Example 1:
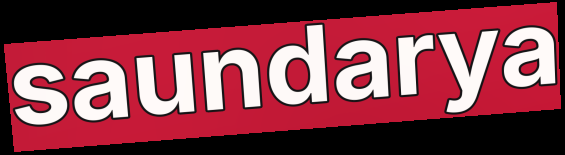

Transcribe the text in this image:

saundarya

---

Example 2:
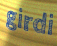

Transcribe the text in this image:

girdi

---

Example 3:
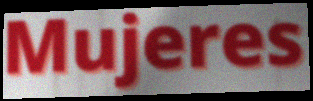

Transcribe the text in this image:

Mujeres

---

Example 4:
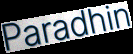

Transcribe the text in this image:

Paradhin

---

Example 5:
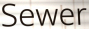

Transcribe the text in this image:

Sewer